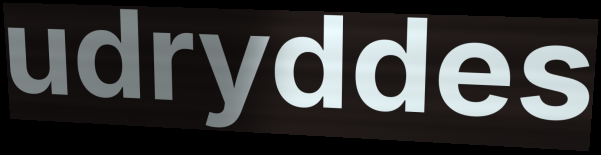
udryddes